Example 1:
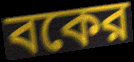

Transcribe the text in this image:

বকের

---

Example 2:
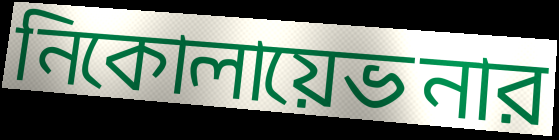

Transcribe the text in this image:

নিকোলায়েভনার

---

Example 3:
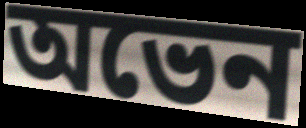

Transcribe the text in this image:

অভেন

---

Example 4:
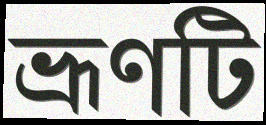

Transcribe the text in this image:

ভ্রূণটি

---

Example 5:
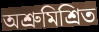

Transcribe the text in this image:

অশ্রুমিশ্রিত